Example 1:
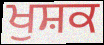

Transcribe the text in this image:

ਖੁਸ਼ਕ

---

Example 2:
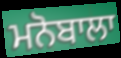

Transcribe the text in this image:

ਮਨੋਬਾਲਾ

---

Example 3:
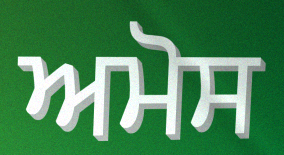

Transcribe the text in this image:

ਅਮੋਸ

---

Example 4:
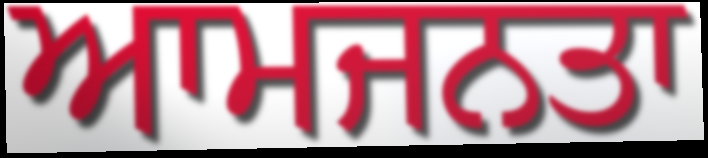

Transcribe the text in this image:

ਆਮਜਨਤਾ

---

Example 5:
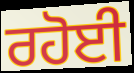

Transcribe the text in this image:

ਰਹੋਈ